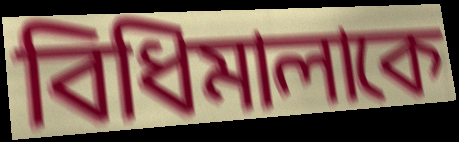
বিধিমালাকে